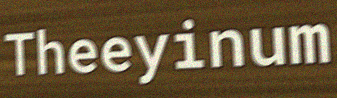
Theeyinum